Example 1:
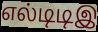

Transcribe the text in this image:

எல்டிடிஇ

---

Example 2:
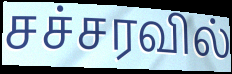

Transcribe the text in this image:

சச்சரவில்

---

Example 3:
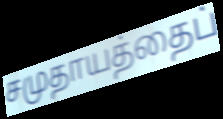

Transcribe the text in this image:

சமுதாயத்தைப்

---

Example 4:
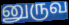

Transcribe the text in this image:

னுருவ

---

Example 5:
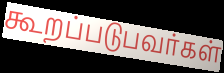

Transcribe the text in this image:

கூறப்படுபவர்கள்